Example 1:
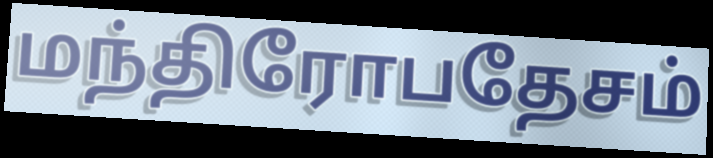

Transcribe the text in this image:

மந்திரோபதேசம்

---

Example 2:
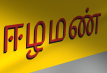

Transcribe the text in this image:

ஈழமண்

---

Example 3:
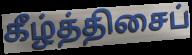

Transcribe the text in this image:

கீழ்த்திசைப்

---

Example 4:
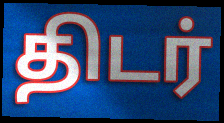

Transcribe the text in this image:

திடர்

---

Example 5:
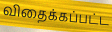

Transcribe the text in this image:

விதைக்கப்பட்ட